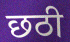
छठी